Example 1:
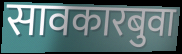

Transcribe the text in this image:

सावकारबुवा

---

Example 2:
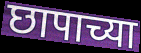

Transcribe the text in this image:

छापाच्या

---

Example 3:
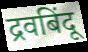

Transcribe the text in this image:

द्रवबिंदू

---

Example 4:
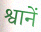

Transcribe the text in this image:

श्वानें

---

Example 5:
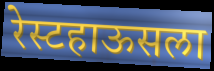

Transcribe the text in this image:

रेस्टहाऊसला